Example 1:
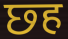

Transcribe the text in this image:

छ्ह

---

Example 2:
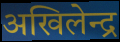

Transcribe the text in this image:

अखिलेन्द्र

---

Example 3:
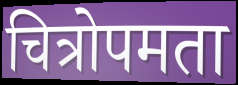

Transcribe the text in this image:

चित्रोपमता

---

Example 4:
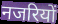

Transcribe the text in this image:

नजरियों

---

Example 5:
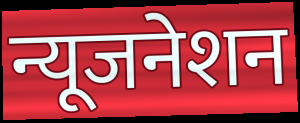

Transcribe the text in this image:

न्यूजनेशन